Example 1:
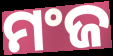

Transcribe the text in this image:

ମଂଜ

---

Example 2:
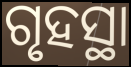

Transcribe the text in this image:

ଗୃହସ୍ଥା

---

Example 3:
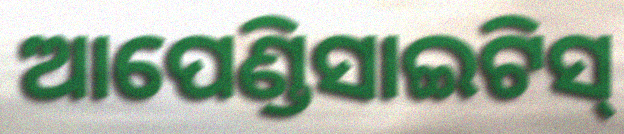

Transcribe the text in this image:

ଆପେଣ୍ଡିସାଇଟିସ୍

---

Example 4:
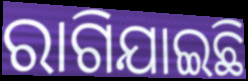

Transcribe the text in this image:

ରାଗିଯାଇଛି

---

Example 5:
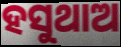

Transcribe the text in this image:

ହସୁଥାଅ